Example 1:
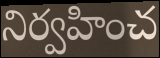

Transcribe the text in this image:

నిర్వహించ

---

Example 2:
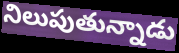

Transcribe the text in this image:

నిలుపుతున్నాడు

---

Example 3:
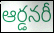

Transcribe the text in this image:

ఆర్డనరీ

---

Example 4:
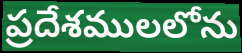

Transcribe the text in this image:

ప్రదేశములలోను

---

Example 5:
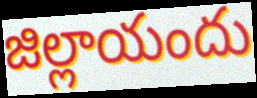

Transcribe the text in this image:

జిల్లాయందు